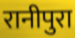
रानीपुरा